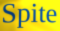
Spite